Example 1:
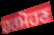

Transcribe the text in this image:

ਹਰਮੋਹਣ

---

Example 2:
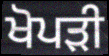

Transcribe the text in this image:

ਖੋਪੜੀ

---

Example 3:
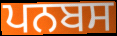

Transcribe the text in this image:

ਪਨਬਸ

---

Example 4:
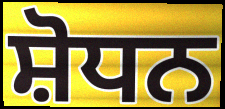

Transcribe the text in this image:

ਸ਼ੋਧਨ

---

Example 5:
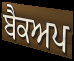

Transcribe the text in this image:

ਬੈਕਅਪ